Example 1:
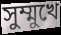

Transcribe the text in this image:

সুম্মুখে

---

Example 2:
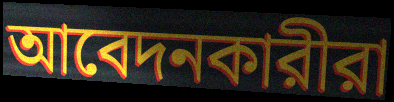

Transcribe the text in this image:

আবেদনকারীরা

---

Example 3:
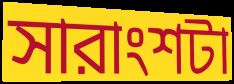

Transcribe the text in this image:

সারাংশটা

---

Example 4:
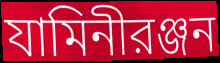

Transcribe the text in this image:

যামিনীরঞ্জন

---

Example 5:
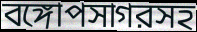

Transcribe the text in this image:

বঙ্গোপসাগরসহ